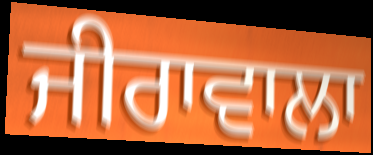
ਜੀਰਾਵਾਲਾ